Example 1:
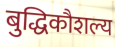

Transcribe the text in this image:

बुद्धिकौशल्य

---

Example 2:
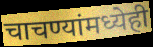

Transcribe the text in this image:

चाचण्यांमध्येही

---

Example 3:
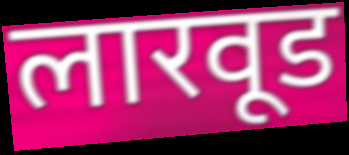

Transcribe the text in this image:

लारवूड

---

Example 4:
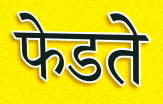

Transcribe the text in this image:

फेडते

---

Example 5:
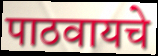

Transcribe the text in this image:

पाठवायचे